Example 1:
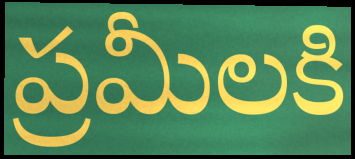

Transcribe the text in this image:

ప్రమీలకి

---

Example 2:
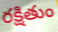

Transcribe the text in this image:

రక్షితుం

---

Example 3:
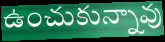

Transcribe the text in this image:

ఉంచుకున్నావు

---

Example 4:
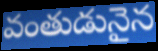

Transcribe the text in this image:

వంతుడునైన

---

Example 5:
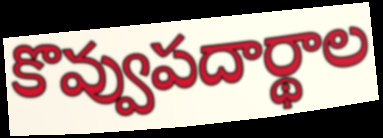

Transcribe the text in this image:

కొవ్వుపదార్థాల